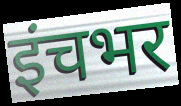
इंचभर